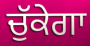
ਚੁੱਕੇਗਾ